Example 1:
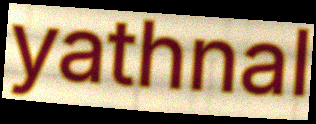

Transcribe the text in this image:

yathnal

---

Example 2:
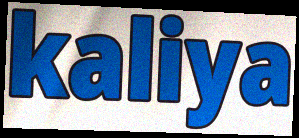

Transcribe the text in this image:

kaliya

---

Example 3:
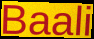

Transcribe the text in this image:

Baali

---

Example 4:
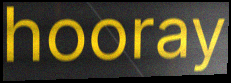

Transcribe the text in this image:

hooray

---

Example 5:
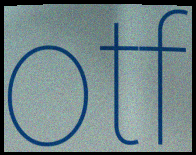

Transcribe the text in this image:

otf